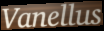
Vanellus